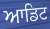
ਆਡਿਟ